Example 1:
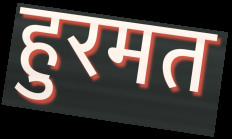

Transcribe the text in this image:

हुरमत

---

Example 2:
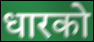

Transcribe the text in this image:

धारको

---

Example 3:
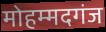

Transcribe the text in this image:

मोहम्मदगंज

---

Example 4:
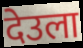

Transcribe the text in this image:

देउला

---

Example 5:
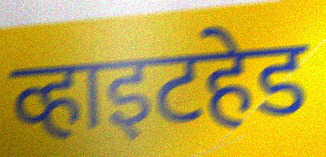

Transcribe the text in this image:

व्हाइटहेड